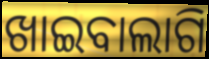
ଖାଇବାଲାଗି